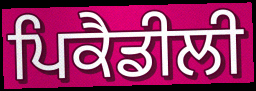
ਪਿਕੈਡੀਲੀ